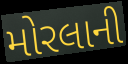
મોરલાની